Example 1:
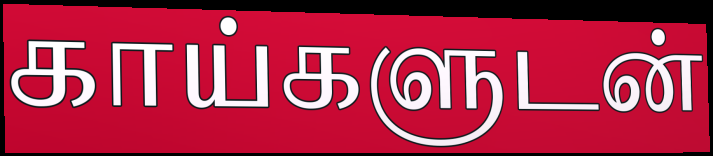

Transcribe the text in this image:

காய்களுடன்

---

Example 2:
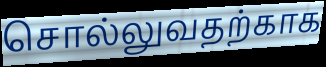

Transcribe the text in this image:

சொல்லுவதற்காக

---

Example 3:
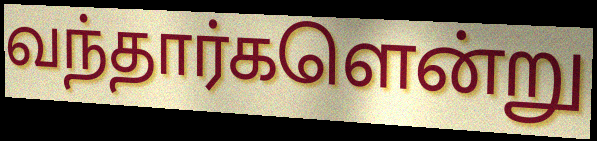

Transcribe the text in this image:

வந்தார்களென்று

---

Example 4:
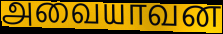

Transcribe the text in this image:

அவையாவன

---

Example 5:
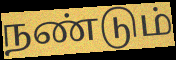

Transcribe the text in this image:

நண்டும்